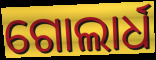
ଗୋଲାର୍ଧ